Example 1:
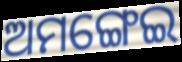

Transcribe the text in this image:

ଅମଙ୍ଗେଇ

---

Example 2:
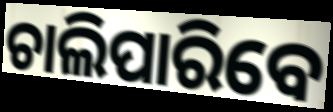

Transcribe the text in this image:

ଚାଲିପାରିବେ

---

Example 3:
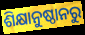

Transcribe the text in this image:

ଶିକ୍ଷାନୁଷ୍ଠାନରୁ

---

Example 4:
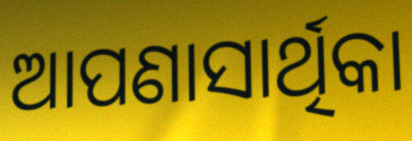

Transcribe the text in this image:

ଆପଣାସାର୍ଥିକା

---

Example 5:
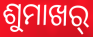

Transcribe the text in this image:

ଶୁମାଖର୍